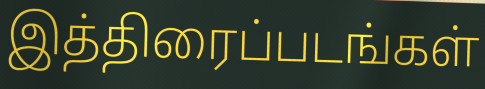
இத்திரைப்படங்கள்